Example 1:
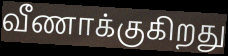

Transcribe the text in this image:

வீணாக்குகிறது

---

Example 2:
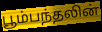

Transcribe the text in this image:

பூம்பந்தலின்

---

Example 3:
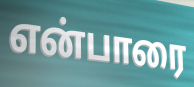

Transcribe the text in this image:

என்பாரை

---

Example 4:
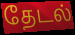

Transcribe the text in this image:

தேடல்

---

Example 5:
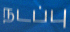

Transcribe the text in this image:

நடப்பு